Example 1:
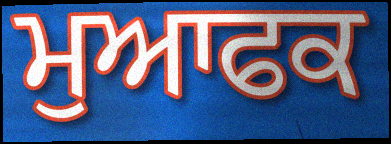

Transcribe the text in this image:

ਮੁਆਫਕ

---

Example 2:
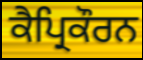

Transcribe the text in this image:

ਕੈਪ੍ਰਿਕੌਰਨ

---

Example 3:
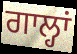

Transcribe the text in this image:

ਗਾਲ੍ਹਾਂ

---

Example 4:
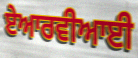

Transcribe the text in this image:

ਏਆਰਵੀਆਈ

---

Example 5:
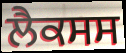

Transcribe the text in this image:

ਲੈਕਸਸ